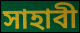
সাহাবী